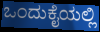
ಒಂದುಕೈಯಲ್ಲಿ